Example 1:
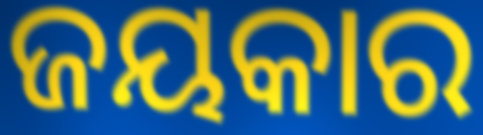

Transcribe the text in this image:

ଜୟକାର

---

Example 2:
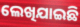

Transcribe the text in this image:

ଲେଖିଯାଇଛି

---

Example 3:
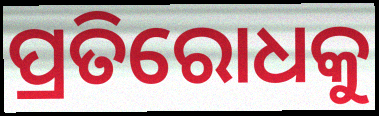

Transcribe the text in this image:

ପ୍ରତିରୋଧକୁ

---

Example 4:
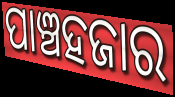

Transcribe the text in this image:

ପାଞ୍ଚହଜାର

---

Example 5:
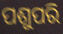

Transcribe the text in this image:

ପଶୁପରି